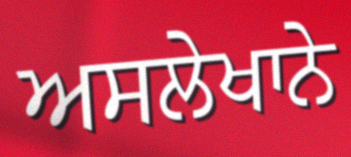
ਅਸਲੇਖਾਨੇ